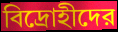
বিদ্রোহীদের